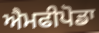
ਐਮਫੀਪੋਡਾ